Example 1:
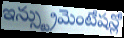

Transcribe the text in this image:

ఇన్స్ట్రుమెంటేషన్లో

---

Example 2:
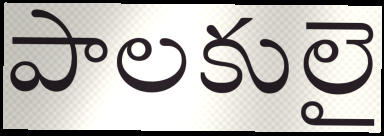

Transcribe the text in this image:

పాలకులై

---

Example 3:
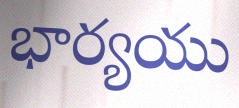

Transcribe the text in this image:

భార్యయు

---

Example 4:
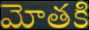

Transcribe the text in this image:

మోతకి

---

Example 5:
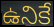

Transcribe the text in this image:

ఉనికే